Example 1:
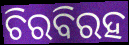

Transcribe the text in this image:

ଚିରବିରହ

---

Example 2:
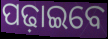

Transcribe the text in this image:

ପଢ଼ାଇବେ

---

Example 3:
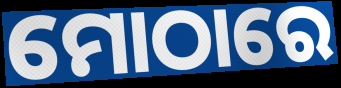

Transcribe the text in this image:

ମୋଠାରେ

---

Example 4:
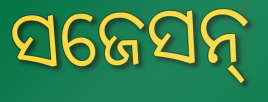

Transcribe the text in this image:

ସଜେସନ୍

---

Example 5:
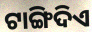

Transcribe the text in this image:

ଟାଙ୍ଗିଦିଏ